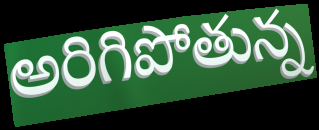
అరిగిపోతున్న